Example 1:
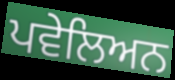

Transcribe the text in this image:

ਪਵੇਲਿਅਨ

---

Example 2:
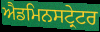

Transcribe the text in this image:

ਐਡਮਿਨਸਟ੍ਰੇਟਰ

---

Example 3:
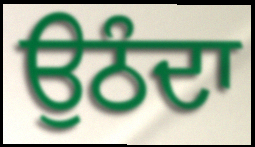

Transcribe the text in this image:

ਉਠੰਦਾ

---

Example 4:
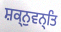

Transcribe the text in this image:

ਸ਼ਕ੍ਨੁਵਨ੍ਤਿ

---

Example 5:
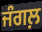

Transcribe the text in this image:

ਜੰਗਲ਼